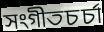
সংগীতচর্চা